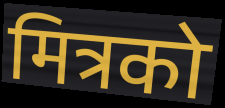
मित्रको